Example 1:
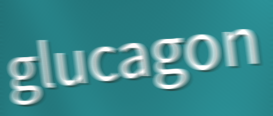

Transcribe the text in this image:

glucagon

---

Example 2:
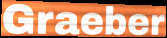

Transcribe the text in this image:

Graeber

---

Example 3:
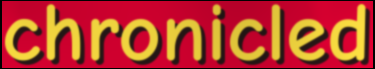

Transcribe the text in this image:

chronicled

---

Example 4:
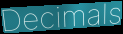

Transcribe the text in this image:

Decimals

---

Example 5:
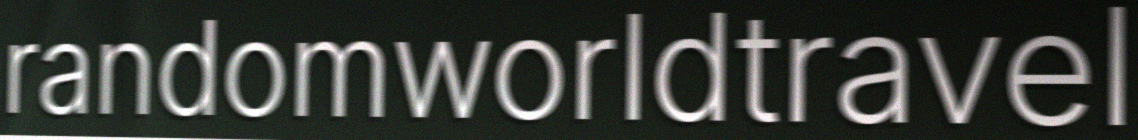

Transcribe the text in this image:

randomworldtravel